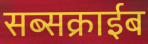
सब्सक्राईब